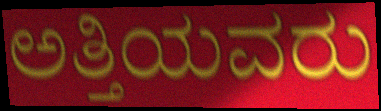
ಅತ್ತಿಯವರು